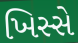
ખિસ્સે